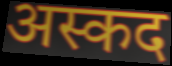
अस्कद